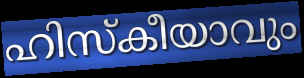
ഹിസ്കീയാവും